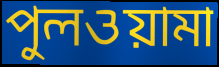
পুলওয়ামা